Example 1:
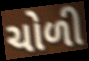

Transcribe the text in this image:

ચોળી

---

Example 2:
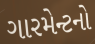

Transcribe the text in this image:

ગારમેન્ટનો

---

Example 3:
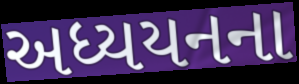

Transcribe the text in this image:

અધ્યયનના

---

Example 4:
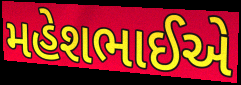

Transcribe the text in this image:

મહેશભાઈએ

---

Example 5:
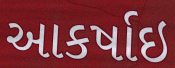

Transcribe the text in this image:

આકર્ષાઇ